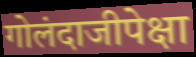
गोलंदाजीपेक्षा